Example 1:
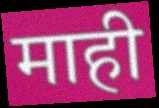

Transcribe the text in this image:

माही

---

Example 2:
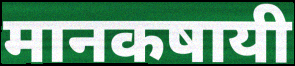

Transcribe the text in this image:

मानकषायी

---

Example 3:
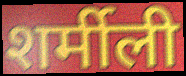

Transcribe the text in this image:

शर्मीली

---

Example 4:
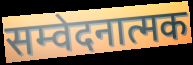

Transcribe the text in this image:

सम्वेदनात्मक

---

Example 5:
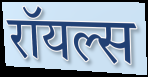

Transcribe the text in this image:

रॉयल्स